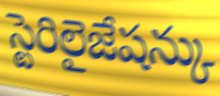
స్టెరిలైజేషన్కు